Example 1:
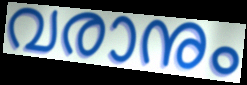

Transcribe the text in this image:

വരാനും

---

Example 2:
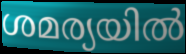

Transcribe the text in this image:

ശമര്യയിൽ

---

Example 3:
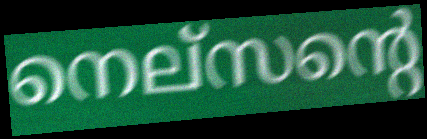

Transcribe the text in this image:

നെല്സന്റെ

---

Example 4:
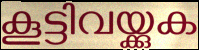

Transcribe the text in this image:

കൂട്ടിവയ്ക്കുക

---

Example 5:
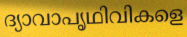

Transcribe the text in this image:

ദ്യാവാപൃഥിവികളെ